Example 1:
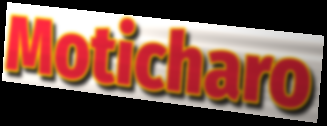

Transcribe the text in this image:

Moticharo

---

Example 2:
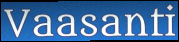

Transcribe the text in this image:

Vaasanti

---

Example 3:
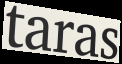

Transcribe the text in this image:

taras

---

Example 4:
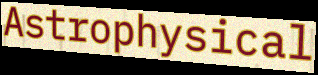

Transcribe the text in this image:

Astrophysical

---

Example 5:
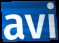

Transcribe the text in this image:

avi